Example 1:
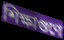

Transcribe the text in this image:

শিক্ষাগুণে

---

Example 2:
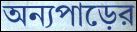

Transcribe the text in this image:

অন্যপাড়ের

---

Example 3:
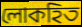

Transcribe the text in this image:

লোকহিত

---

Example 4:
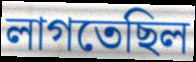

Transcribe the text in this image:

লাগতেছিল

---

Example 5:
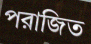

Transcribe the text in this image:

পরাজিত